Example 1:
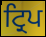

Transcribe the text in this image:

ਟ੍ਰਿਪ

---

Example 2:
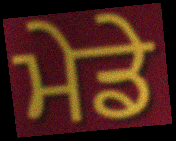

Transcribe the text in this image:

ਮੇਡੇ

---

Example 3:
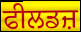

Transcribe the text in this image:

ਫੀਲਡਜ਼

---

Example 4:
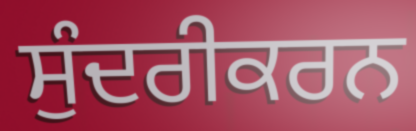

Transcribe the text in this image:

ਸੁੰਦਰੀਕਰਨ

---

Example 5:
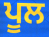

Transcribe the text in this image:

ਪੂਲ